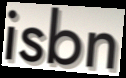
isbn